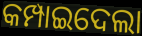
କମ୍ପାଇଦେଲା